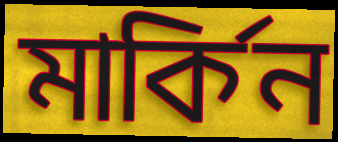
মার্কিন